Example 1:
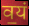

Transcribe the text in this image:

व॒यं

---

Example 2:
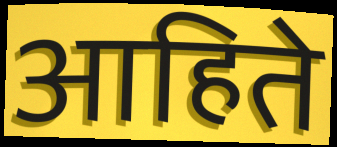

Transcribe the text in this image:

आहिते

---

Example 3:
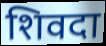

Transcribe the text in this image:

शिवदा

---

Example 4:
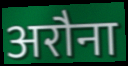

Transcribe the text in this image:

अरौना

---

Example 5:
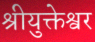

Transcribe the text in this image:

श्रीयुक्तेश्वर